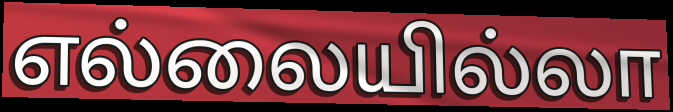
எல்லையில்லா